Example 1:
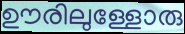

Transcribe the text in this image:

ഊരിലുള്ളോരു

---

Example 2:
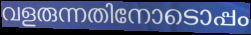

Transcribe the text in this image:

വളരുന്നതിനോടൊപ്പം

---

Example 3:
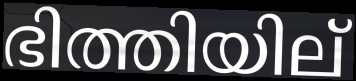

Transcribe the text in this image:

ഭിത്തിയില്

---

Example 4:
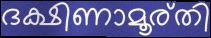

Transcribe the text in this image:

ദക്ഷിണാമൂര്തി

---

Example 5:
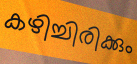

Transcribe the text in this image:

കഴിച്ചിരിക്കും